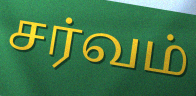
சர்வம்